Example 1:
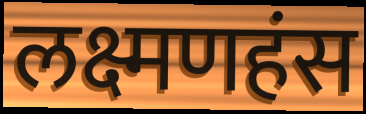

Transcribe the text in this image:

लक्ष्मणहंस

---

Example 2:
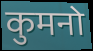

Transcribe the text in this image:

कुमनो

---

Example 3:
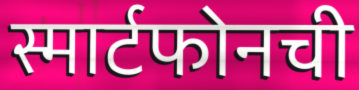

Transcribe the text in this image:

स्मार्टफोनची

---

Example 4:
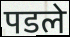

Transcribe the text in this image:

पडले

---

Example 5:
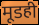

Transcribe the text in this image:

मूडही